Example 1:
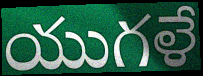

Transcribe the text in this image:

యుగళే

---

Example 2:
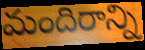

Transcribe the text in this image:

మందిరాన్ని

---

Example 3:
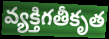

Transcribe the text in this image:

వ్యక్తిగతీకృత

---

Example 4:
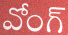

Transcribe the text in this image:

వోంగ్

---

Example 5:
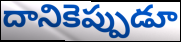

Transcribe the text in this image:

దానికెప్పుడూ